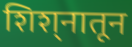
शिश्नातून